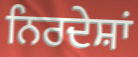
ਨਿਰਦੇਸ਼ਾਂ